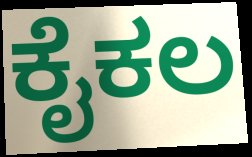
ಕೈಕಲ